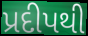
પ્રદીપથી